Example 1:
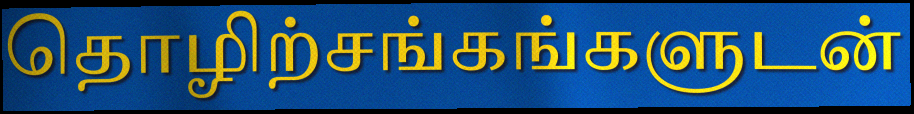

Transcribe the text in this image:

தொழிற்சங்கங்களுடன்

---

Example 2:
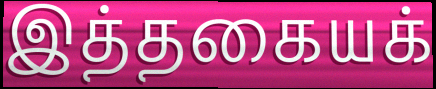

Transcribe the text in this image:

இத்தகையக்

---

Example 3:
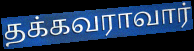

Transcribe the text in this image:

தக்கவராவார்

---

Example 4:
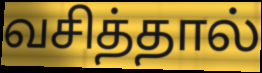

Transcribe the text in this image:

வசித்தால்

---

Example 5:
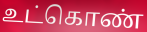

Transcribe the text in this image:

உட்கொண்